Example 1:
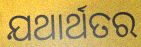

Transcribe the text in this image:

ଯଥାର୍ଥତର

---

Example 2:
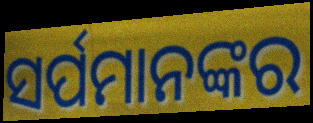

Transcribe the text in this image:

ସର୍ପମାନଙ୍କର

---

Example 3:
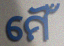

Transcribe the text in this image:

ମୈଁ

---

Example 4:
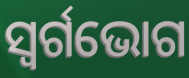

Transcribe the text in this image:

ସ୍ୱର୍ଗଭୋଗ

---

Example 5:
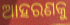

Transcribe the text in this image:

ଆହରଣକୁ